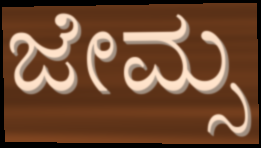
ಜೇಮ್ಸ